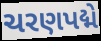
ચરણપદ્મે